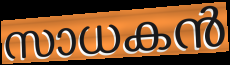
സാധകൻ